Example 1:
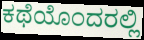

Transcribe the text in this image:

ಕಥೆಯೊಂದರಲ್ಲಿ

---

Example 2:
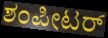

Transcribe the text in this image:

ಶಂಪೀಟರ್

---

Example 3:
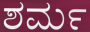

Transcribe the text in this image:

ಶರ್ಮ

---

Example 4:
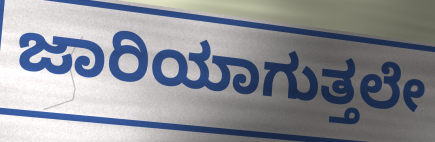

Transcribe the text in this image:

ಜಾರಿಯಾಗುತ್ತಲೇ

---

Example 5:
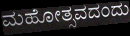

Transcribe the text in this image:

ಮಹೋತ್ಸವದಂದು